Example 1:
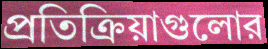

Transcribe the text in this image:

প্রতিক্রিয়াগুলোর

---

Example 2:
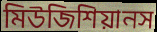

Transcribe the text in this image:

মিউজিশিয়ানস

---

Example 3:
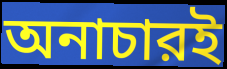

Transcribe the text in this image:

অনাচারই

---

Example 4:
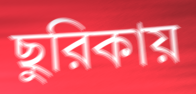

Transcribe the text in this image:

ছুরিকায়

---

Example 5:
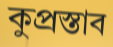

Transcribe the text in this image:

কুপ্রস্তাব